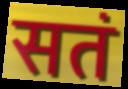
सतं